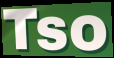
Tso